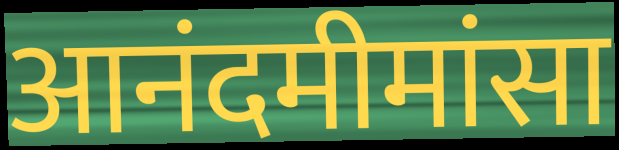
आनंदमीमांसा